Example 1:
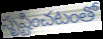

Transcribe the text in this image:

సృష్టించటంతో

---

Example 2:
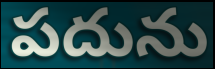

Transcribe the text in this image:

పదును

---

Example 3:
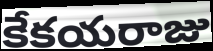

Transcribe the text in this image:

కేకయరాజు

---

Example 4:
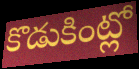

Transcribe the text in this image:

కొడుకింట్లో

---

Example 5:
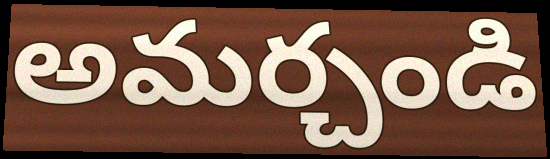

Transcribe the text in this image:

అమర్చండి